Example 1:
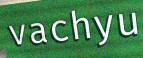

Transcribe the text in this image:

vachyu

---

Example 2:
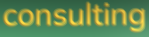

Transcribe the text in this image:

consulting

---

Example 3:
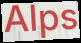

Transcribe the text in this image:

Alps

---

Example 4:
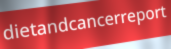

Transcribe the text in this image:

dietandcancerreport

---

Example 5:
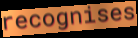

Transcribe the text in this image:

recognises